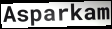
Asparkam